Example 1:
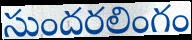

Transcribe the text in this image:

సుందరలింగం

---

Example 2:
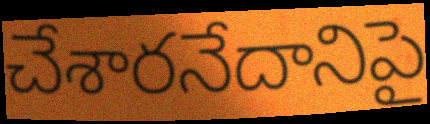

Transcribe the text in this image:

చేశారనేదానిపై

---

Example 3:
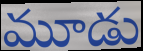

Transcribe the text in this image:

మూడు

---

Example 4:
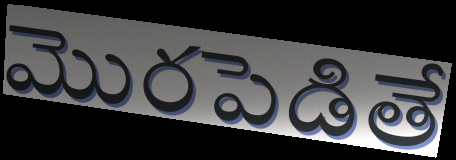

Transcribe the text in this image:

మొరపెడితే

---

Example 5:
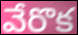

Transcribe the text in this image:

వేరొక